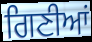
ਗਿਣੀਆਂ